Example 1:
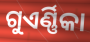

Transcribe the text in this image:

ଗୁଏର୍ଣ୍ଣିକା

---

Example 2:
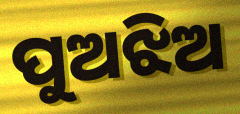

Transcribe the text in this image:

ପୁଅଝିଅ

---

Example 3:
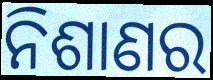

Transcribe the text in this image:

ନିଶାଣର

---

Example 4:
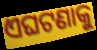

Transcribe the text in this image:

ଏଘଟଣାକୁ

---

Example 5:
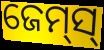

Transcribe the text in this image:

ଜେମ୍‌ସ୍